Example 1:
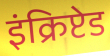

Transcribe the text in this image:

इंक्रिप्टेड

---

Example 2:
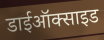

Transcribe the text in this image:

डाईऑक्साइड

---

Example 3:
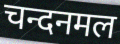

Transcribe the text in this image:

चन्दनमल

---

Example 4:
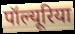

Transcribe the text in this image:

पॉल्यूरिया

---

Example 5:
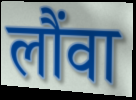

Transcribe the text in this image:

लौंवा